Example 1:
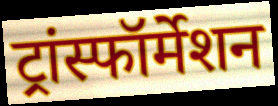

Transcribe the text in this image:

ट्रांस्फॉर्मेशन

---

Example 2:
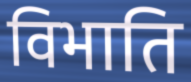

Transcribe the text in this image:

विभाति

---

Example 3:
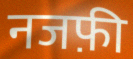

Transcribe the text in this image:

नजफ़ी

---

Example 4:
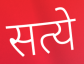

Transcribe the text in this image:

सत्ये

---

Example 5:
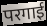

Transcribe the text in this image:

परगाई